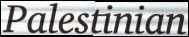
Palestinian